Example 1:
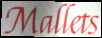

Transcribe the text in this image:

Mallets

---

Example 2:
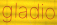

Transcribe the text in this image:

gladio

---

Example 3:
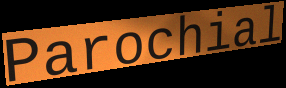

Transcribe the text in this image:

Parochial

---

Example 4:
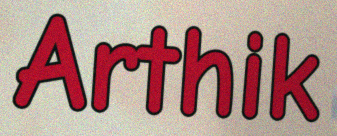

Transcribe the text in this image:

Arthik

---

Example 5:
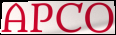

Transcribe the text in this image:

APCO